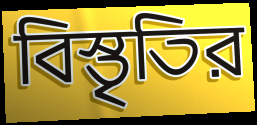
বিস্তৃতির